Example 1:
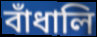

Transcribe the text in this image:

বাঁধালি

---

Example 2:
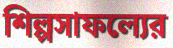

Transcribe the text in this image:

শিল্পসাফল্যের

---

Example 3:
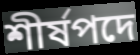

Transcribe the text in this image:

শীর্ষপদে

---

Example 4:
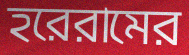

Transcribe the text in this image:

হরেরামের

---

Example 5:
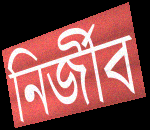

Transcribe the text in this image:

নির্জীব